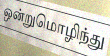
ஒன்றுமொழிந்து